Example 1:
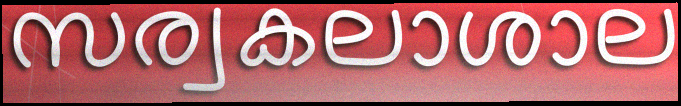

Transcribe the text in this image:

സര്വകലാശാല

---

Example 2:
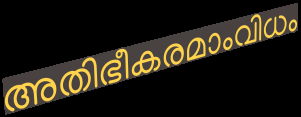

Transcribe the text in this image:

അതിഭീകരമാംവിധം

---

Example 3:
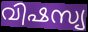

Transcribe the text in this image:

വിഷസ്യ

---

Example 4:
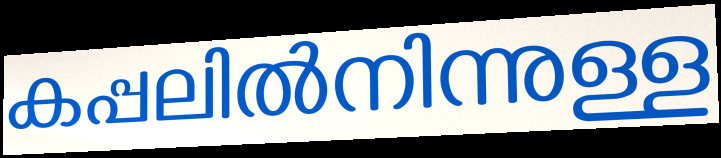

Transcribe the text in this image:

കപ്പലിൽനിന്നുള്ള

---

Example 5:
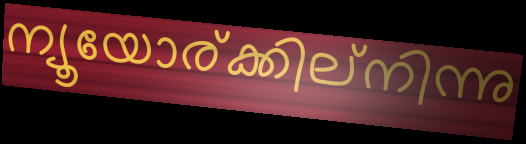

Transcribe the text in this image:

ന്യൂയോര്ക്കില്നിന്നു